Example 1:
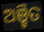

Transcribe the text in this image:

ଅଞ୍ଚିତ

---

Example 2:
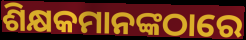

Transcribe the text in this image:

ଶିକ୍ଷକମାନଙ୍କଠାରେ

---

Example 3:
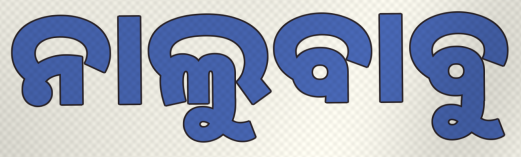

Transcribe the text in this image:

ନାଲୁବାବୁ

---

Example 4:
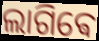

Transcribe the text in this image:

ଲାଗିଵେ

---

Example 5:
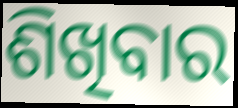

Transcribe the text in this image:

ଶିଖିବାର